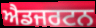
ਐਡਜਰਟਨ